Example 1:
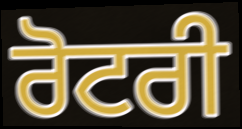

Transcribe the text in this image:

ਰੋਟਰੀ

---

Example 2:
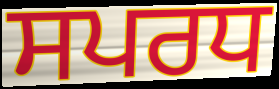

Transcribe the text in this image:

ਸਪਰਧ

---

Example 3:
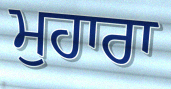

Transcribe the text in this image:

ਮੁਹਾਰਾ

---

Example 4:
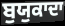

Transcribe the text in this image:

ਬੁਯੁਕਾਦਾ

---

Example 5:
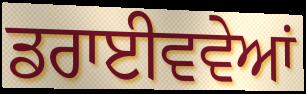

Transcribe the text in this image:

ਡਰਾਈਵਵੇਆਂ